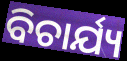
ବିଚାର୍ଯ୍ୟ